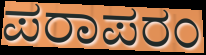
ಪರಾಪರಂ